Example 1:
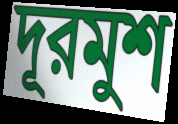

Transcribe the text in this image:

দূরমুশ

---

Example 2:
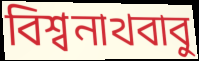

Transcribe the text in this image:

বিশ্বনাথবাবু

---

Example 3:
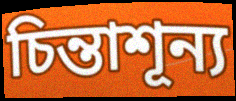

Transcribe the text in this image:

চিন্তাশূন্য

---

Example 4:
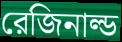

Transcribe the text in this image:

রেজিনাল্ড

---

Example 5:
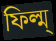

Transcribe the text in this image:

ফিল্ম্